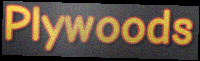
Plywoods